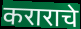
कराराचे